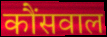
कौंसवाल